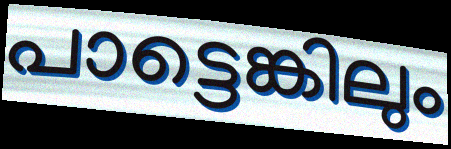
പാട്ടെങ്കിലും